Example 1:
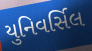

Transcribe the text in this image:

યુનિવર્સિલ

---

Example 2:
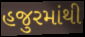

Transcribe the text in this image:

હજુરમાંથી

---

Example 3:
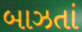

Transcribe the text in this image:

બાઝતાં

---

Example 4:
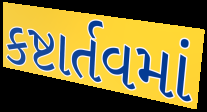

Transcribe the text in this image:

કષ્ટાર્તવમાં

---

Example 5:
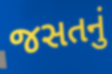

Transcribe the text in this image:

જસતનું